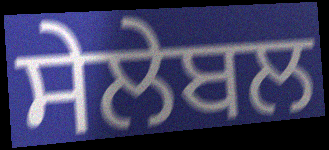
ਸੇਲੇਬਲ